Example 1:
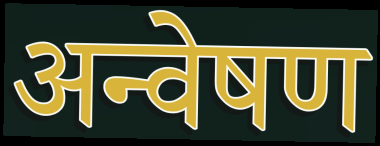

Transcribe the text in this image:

अन्वेषण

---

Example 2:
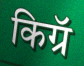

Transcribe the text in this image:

किग्रॅ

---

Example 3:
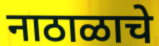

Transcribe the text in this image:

नाठाळाचे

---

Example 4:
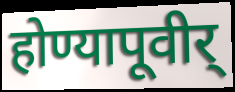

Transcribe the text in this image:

होण्यापूवीर्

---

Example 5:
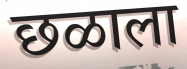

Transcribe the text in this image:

छळाला